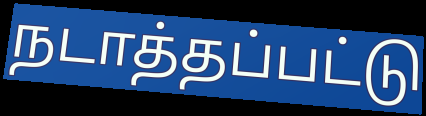
நடாத்தப்பட்டு